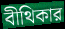
বীথিকার